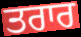
ਤਰਾਰ